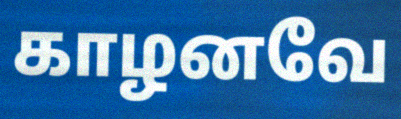
காழனவே